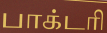
பாக்டரி